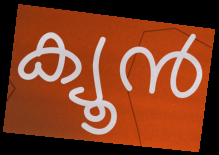
ക്യൂൻ